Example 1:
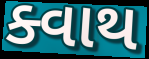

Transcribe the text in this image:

ક્વાથ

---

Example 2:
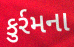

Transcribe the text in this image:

કુર્રમના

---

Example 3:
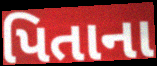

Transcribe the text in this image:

પિતાના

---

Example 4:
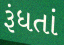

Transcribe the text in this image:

રૂંધતાં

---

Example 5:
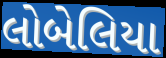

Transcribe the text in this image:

લોબેલિયા